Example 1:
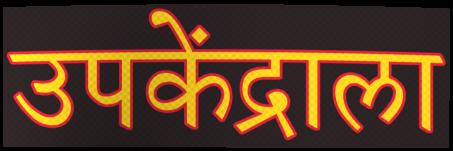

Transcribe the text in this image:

उपकेंद्राला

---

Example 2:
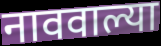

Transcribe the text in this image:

नाववाल्या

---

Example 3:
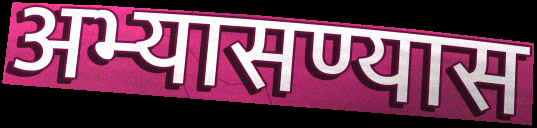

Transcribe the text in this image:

अभ्यासण्यास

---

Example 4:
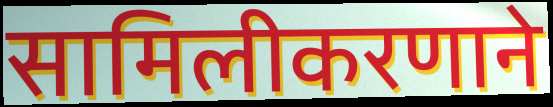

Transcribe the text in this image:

सामिलीकरणाने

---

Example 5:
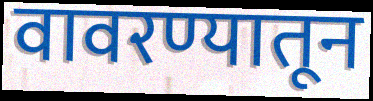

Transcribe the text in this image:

वावरण्यातून